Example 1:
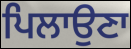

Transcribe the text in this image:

ਪਿਲਾਉਣਾ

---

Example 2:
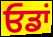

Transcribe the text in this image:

ਓਡਾਂ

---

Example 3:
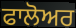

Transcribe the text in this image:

ਫਾਲੋਅਰ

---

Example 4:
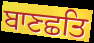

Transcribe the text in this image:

ਬਾਣਛਤਿ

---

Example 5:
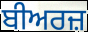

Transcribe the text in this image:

ਬੀਅਰਜ਼